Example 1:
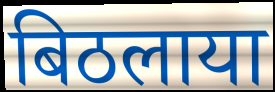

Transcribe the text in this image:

बिठलाया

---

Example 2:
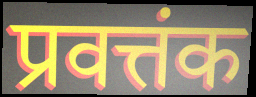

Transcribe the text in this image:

प्रवत्तंक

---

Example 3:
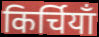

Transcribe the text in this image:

किर्चियाँ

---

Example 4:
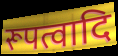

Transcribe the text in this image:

रूपत्वादि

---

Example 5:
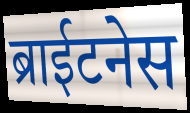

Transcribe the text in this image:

ब्राईटनेस